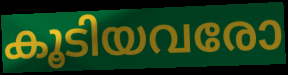
കൂടിയവരോ